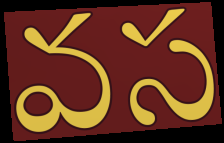
వస